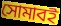
সোমাবই